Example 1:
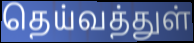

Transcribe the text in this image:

தெய்வத்துள்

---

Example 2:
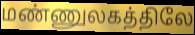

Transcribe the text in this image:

மண்ணுலகத்திலே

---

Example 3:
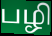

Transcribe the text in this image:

பழி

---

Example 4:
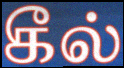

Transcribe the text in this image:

கீல்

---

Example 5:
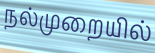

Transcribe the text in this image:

நல்முறையில்